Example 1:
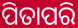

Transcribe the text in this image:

ପିତାପରି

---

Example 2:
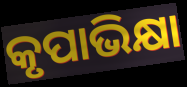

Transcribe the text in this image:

କୃପାଭିକ୍ଷା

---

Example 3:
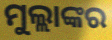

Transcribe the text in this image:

ମୁଲ୍ଲାଙ୍କର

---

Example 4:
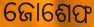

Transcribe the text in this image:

ଜୋଶେଫ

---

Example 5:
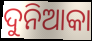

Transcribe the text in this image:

ଦୁନିଆକା